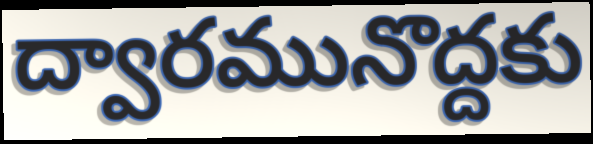
ద్వారమునొద్దకు